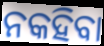
ନକହିବା